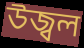
উজ্বল